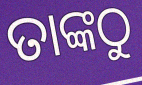
ତାଙ୍କଠୁ